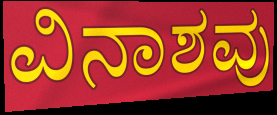
ವಿನಾಶವು